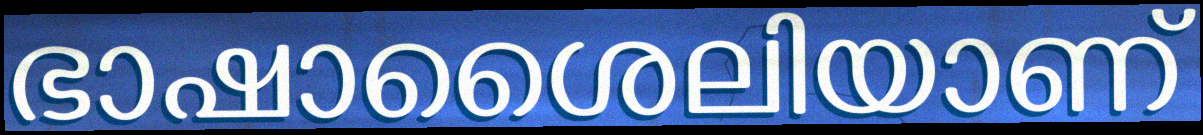
ഭാഷാശൈലിയാണ്